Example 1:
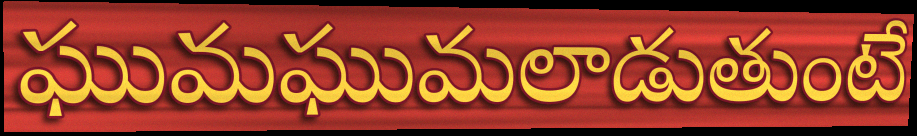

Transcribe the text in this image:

ఘుమఘుమలాడుతుంటే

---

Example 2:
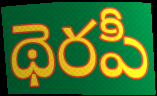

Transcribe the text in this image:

థెరపీ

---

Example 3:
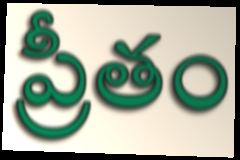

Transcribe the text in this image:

ప్రీతం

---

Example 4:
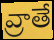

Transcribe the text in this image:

వ్రాతే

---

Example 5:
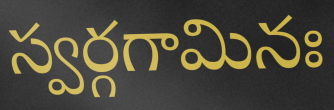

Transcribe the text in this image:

స్వర్గగామినః